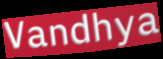
Vandhya